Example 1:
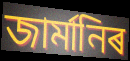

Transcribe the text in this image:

জাৰ্মানিৰ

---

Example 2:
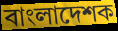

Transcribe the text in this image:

বাংলাদেশক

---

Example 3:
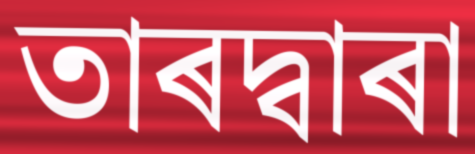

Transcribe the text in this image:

তাৰদ্বাৰা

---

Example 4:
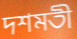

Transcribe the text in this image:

দশমতী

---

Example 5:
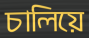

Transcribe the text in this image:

চালিয়ে